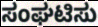
ಸಂಘಟಿಸು